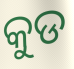
କୁଡ